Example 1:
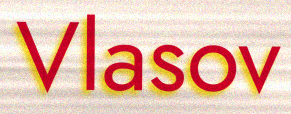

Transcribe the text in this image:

Vlasov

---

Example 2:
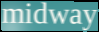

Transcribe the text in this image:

midway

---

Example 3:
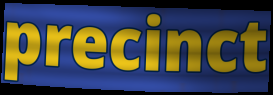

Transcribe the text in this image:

precinct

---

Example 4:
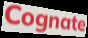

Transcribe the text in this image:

Cognate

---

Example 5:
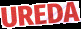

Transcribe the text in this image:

UREDA